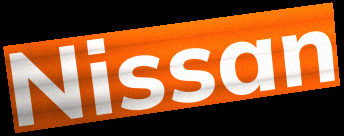
Nissan